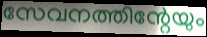
സേവനത്തിന്റേയും